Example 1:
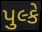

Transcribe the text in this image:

પુલ્કે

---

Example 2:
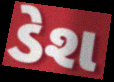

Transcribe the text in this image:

ડેશ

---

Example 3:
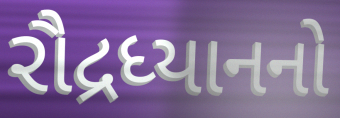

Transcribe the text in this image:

રૌદ્રધ્યાનનો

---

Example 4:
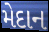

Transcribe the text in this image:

મેદાન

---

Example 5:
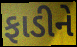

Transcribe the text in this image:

ફાડીને